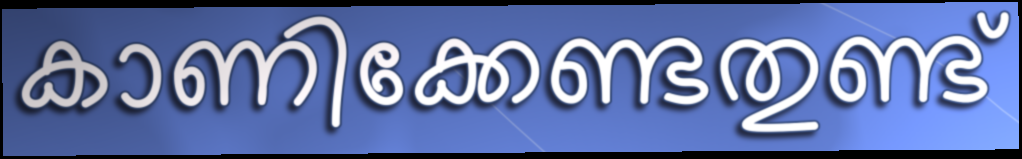
കാണിക്കേണ്ടതുണ്ട്